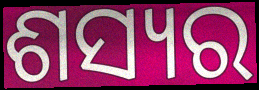
ଶସ୍ଯର